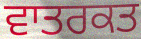
ਵਾਤਰਕਤ